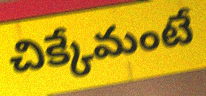
చిక్కేమంటే